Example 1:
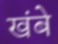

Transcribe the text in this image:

खंबे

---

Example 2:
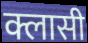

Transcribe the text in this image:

क्लासी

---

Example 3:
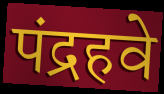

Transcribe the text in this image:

पंद्रहवे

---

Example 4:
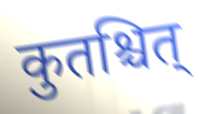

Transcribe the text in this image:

कुतश्चित्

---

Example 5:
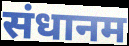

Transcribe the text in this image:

संधानम